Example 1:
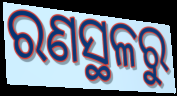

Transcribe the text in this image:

ରଣସ୍ଥଳରୁ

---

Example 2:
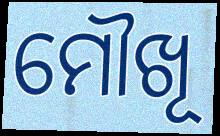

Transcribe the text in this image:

ମୌଖୂ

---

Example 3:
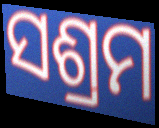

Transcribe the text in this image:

ସଶ୍ରମ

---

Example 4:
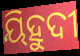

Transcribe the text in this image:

ୟିହୁଦୀ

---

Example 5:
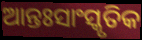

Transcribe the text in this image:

ଆନ୍ତଃସାଂସ୍କୃତିକ